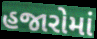
હજારોમાં